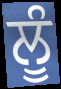
ਲੂੰ